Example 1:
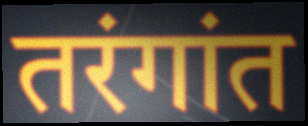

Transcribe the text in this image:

तरंगांत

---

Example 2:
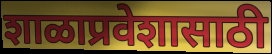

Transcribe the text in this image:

शाळाप्रवेशासाठी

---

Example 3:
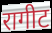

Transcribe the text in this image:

रागीट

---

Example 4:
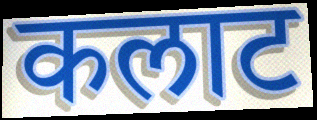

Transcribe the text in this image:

कलाट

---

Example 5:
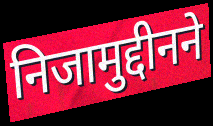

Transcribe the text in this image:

निजामुद्दीनने